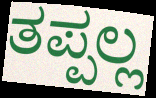
ತಪ್ಪಲ್ಲ